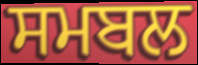
ਸਮਬਲ